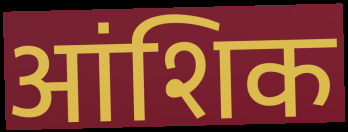
आंशिक